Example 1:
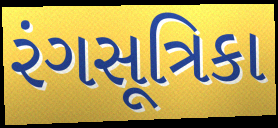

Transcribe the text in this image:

રંગસૂત્રિકા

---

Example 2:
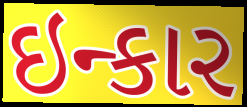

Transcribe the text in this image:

ઇન્કાર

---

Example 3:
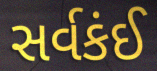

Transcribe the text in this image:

સર્વકંઈ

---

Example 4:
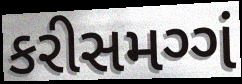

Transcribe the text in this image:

કરીસમગ્ગં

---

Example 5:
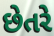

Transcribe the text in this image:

છેતરે